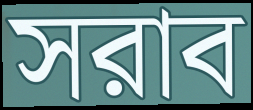
সরাব